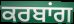
ਕਰਬਾਂਗ